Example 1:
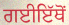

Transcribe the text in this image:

ਗਈਇੱਥੋਂ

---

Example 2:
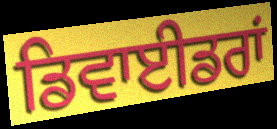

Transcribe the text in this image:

ਡਿਵਾਈਡਰਾਂ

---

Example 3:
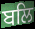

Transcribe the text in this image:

ਬਲਿ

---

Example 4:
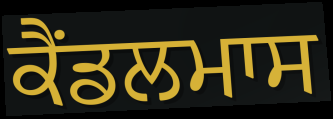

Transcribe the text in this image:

ਕੈਂਡਲਮਾਸ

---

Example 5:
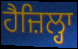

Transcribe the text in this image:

ਹੈਜ਼ਿਲ੍ਹਾ